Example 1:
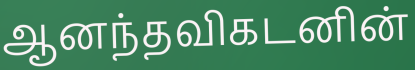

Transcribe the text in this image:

ஆனந்தவிகடனின்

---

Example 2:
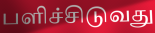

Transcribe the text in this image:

பளிச்சிடுவது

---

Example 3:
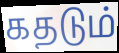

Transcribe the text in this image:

கதடும்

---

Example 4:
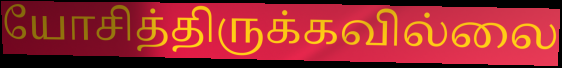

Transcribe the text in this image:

யோசித்திருக்கவில்லை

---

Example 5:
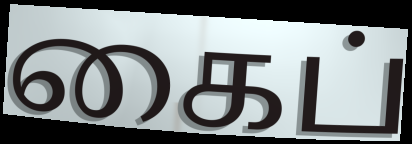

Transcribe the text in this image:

கைப்